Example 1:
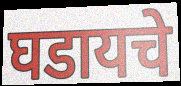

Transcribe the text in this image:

घडायचे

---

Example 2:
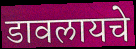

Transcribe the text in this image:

डावलायचे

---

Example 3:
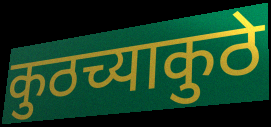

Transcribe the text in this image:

कुठच्याकुठे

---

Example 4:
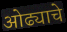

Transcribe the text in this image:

ओढ्याचे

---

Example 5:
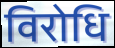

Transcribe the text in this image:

विरोधि